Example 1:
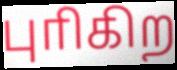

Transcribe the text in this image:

புரிகிற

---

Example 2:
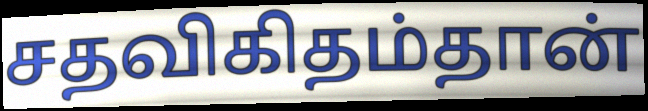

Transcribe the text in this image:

சதவிகிதம்தான்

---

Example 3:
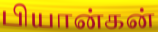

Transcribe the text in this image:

பியான்கன்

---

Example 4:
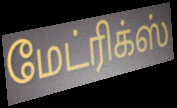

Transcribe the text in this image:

மேட்ரிக்ஸ்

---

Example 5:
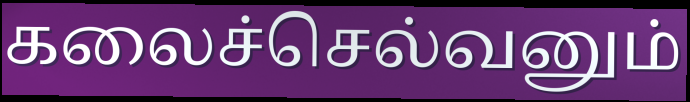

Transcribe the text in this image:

கலைச்செல்வனும்